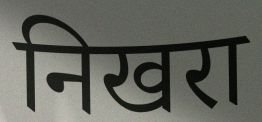
निखरा